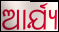
ଆର୍ଯ୍ୟ